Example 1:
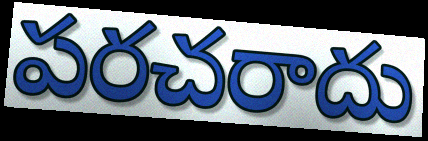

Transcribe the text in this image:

పరచరాదు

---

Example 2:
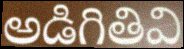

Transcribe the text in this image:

అడిగితివి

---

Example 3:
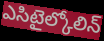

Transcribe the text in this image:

ఎసిటైల్కోలిన్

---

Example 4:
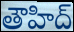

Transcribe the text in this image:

తౌహిద్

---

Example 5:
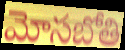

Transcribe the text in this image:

మోసబోతి